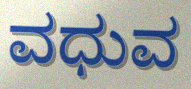
ವಧುವ